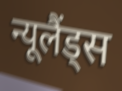
न्यूलैंड्स